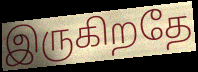
இருகிறதே